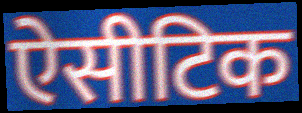
ऐसीटिक